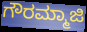
ಗೌರಮ್ಮಾಜಿ